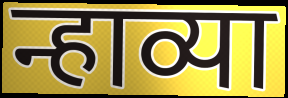
न्हाव्या